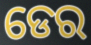
ଡେର